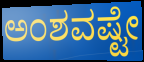
ಅಂಶವಷ್ಟೇ